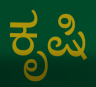
ಕೃಷಿ